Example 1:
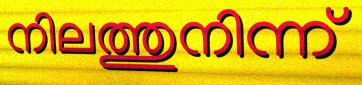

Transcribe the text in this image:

നിലത്തുനിന്ന്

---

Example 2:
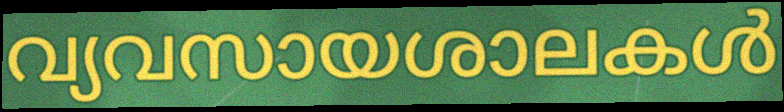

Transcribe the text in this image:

വ്യവസായശാലകൾ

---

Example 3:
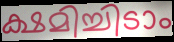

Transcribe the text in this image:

ക്ഷമിച്ചിടാം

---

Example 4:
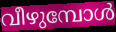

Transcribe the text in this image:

വീഴുമ്പോൾ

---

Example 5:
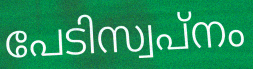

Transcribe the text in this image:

പേടിസ്വപ്നം